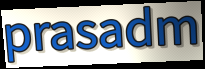
prasadm